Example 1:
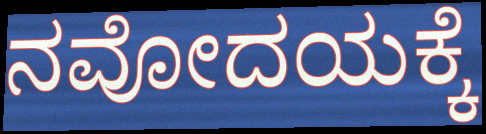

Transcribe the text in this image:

ನವೋದಯಕ್ಕೆ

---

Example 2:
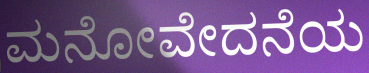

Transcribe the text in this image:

ಮನೋವೇದನೆಯ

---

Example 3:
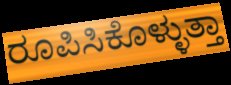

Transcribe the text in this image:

ರೂಪಿಸಿಕೊಳ್ಳುತ್ತಾ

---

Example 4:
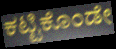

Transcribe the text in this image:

ಕಟ್ಟಿಕೊಂಡೇ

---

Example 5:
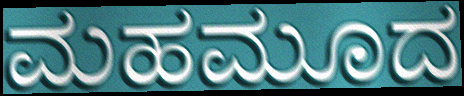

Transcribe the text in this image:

ಮಹಮೂದ